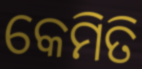
କେମିତି